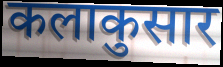
कलाकुसार